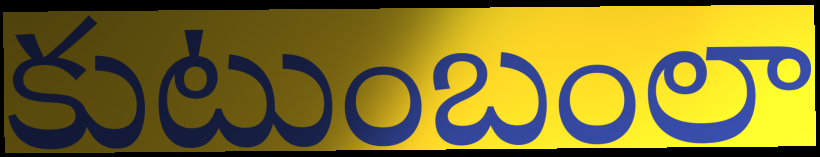
కుటుంబంలా